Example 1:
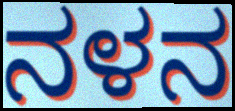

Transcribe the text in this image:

ನಳನ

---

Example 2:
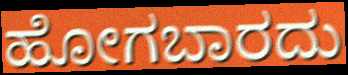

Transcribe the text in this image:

ಹೋಗಬಾರದು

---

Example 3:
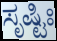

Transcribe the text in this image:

ಸೃಷ್ಟಿಃ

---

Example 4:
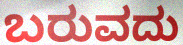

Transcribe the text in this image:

ಬರುವದು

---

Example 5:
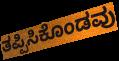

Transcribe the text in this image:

ತಪ್ಪಿಸಿಕೊಂಡವು